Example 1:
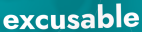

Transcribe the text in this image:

excusable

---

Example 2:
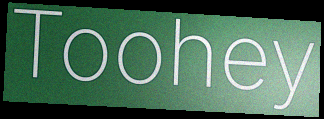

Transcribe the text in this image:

Toohey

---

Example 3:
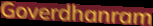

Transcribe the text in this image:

Goverdhanram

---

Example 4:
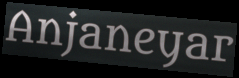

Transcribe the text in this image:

Anjaneyar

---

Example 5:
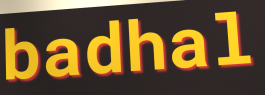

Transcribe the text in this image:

badhal